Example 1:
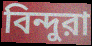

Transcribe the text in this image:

বিন্দুরা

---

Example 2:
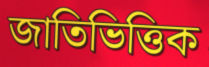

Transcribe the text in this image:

জাতিভিত্তিক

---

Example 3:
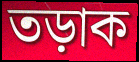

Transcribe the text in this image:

তড়াক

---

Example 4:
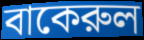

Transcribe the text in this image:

বাকেরুল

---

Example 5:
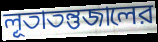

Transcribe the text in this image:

লূতাতন্তুজালের